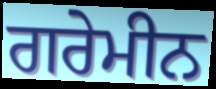
ਗਰੇਮੀਨ